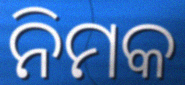
ନିମକ